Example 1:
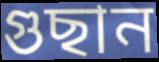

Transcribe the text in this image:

গুছান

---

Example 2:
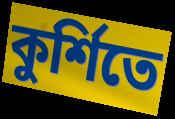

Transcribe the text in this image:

কুর্শিতে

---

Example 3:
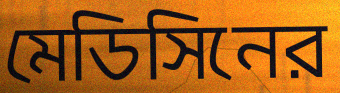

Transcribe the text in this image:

মেডিসিনের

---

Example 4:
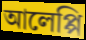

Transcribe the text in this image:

আলেপ্পি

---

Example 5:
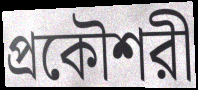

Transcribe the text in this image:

প্রকৌশরী